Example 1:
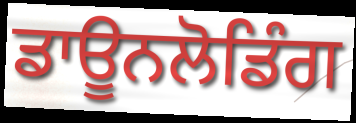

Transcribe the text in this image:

ਡਾਊਨਲੋਡਿੰਗ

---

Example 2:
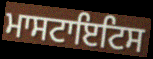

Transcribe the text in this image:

ਮਾਸਟਾਇਟਿਸ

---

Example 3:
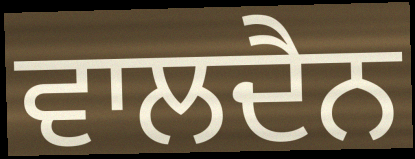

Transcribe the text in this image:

ਵਾਲਦੈਨ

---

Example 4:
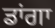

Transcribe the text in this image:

ਡਾਂਗਾ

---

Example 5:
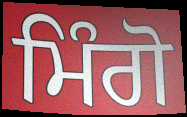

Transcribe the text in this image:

ਮਿੰਗੋ